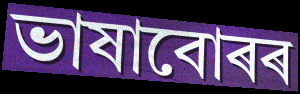
ভাষাবোৰৰ